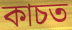
কাচত